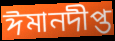
ঈমানদীপ্ত